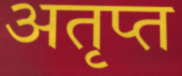
अतृप्त